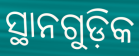
ସ୍ଥାନଗୁଡ଼ିକ